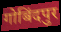
गोबिंदपुर